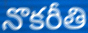
నొకరీతి